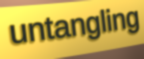
untangling